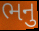
ભનુ